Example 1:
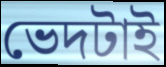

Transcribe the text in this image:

ভেদটাই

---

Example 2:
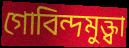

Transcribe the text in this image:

গোবিন্দমুক্ত্বা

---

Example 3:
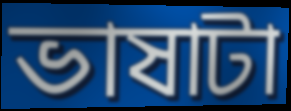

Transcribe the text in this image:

ভাষাটা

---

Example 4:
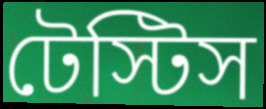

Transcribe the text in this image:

টেস্টিস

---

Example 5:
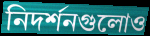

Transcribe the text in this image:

নিদর্শনগুলোও